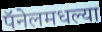
पॅनेलमधल्या